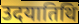
उदयातिथि